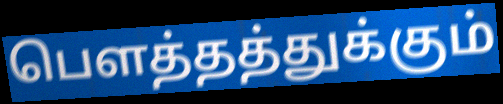
பௌத்தத்துக்கும்